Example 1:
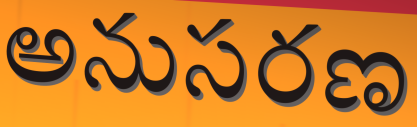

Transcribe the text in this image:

అనుసరణ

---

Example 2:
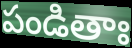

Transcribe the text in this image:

పండితాః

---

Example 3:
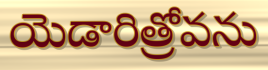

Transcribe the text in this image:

యెడారిత్రోవను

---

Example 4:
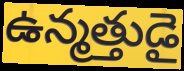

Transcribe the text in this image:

ఉన్మత్తుడై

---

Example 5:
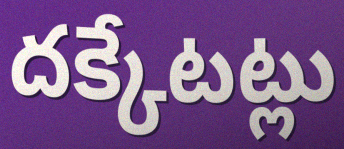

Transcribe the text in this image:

దక్కేటట్లు